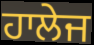
ਹਾਲੇਜ